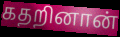
கதறினான்